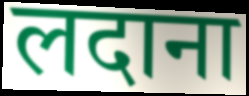
लदाना